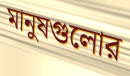
মানুষগুলোর